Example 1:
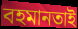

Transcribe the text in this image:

বহমানতাই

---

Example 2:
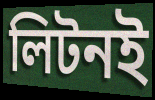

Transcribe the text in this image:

লিটনই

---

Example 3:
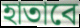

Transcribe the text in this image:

হাতাবে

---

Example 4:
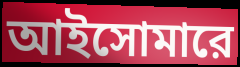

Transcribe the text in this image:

আইসোমারে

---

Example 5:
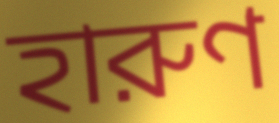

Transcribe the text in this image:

হারুণ